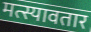
मत्स्यावतार